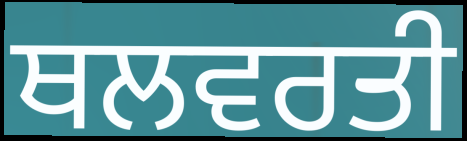
ਥਲਵਰਤੀ